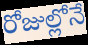
రోజుల్లోనే